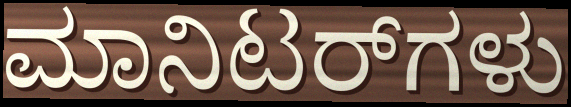
ಮಾನಿಟರ್‌ಗಳು